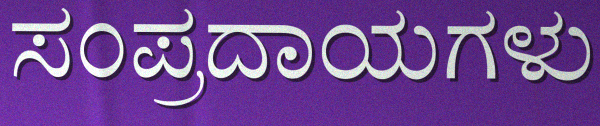
ಸಂಪ್ರದಾಯಗಳು